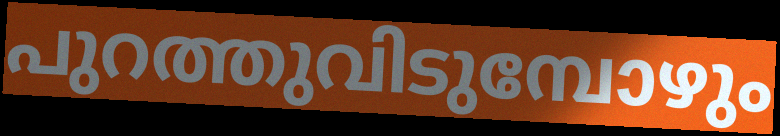
പുറത്തുവിടുമ്പോഴും